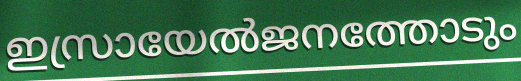
ഇസ്രായേൽജനത്തോടും